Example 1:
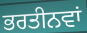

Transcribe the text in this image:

ਭਰਤੀਨਵਾਂ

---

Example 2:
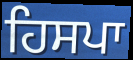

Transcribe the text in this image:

ਹਿਸਪਾ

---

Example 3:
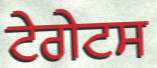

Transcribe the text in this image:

ਟੇਗੇਟਸ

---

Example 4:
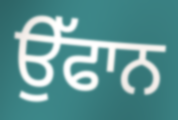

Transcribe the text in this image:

ਉੱਫਾਨ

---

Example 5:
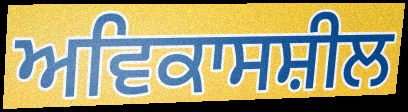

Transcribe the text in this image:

ਅਵਿਕਾਸਸ਼ੀਲ